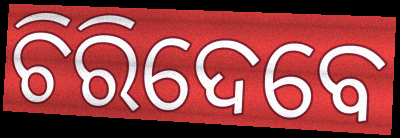
ଚିରିଦେବେ